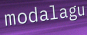
modalagu